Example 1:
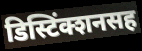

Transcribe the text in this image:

डिस्टिंक्शनसह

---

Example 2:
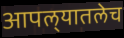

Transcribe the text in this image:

आपल्यातलेच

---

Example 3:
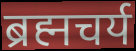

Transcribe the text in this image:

ब्रह्मचर्य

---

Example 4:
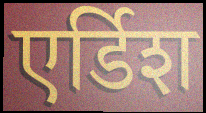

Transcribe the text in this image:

एर्डिश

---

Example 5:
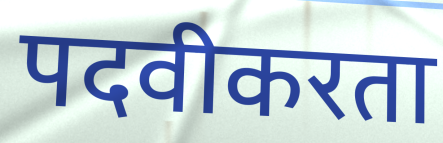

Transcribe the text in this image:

पदवीकरता